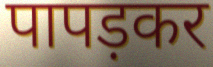
पापड़कर